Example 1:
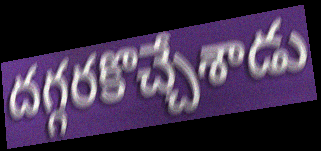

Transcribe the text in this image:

దగ్గరకొచ్చేశాడు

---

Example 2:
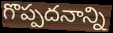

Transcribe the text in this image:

గొప్పదనాన్ని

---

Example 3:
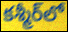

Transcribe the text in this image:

కశ్మీర్‌లో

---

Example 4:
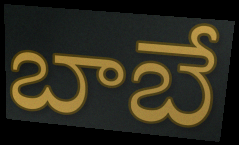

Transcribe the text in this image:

బాబే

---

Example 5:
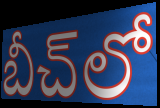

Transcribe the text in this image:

బీచ్‌లో